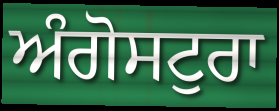
ਅੰਗੋਸਟੁਰਾ